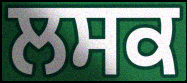
ਲਸਕ